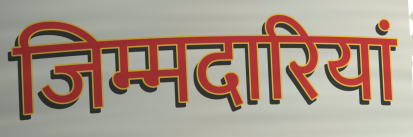
जिम्मदारियां